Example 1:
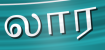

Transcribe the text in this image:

லார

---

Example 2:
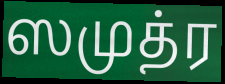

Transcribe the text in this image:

ஸமுத்ர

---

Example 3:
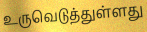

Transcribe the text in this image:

உருவெடுத்துள்ளது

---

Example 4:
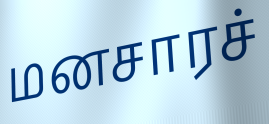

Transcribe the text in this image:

மனசாரச்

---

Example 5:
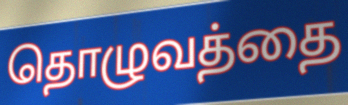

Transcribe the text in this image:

தொழுவத்தை